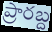
ప్రారబ్ద